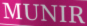
MUNIR